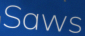
Saws